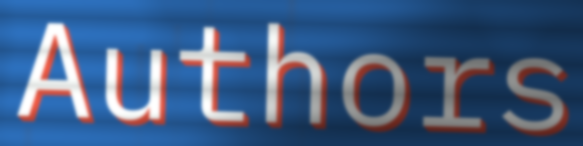
Authors